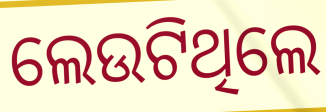
ଲେଉଟିଥିଲେ